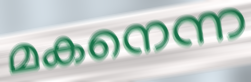
മകനെന്ന